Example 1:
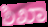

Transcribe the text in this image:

ಶಿಖಾ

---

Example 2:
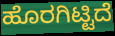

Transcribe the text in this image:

ಹೊರಗಿಟ್ಟಿದೆ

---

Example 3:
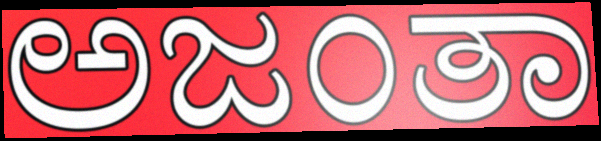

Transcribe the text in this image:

ಅಜಂತಾ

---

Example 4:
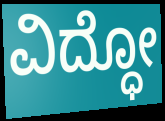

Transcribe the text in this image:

ವಿದ್ಧೋ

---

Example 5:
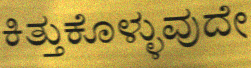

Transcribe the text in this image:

ಕಿತ್ತುಕೊಳ್ಳುವುದೇ